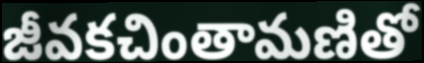
జీవకచింతామణితో